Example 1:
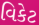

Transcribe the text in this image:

વિકેટ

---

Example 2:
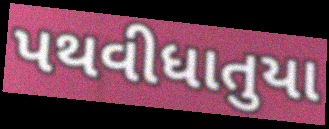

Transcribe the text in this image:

પથવીધાતુયા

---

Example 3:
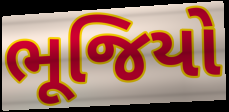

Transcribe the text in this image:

ભૂજિયો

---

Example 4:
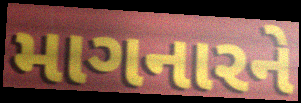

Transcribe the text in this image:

માગનારને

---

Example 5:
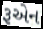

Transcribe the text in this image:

રૂએન